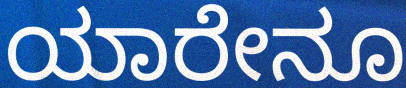
ಯಾರೇನೂ